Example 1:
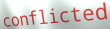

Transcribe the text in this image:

conflicted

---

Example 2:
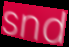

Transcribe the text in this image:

snd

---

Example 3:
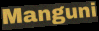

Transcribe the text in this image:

Manguni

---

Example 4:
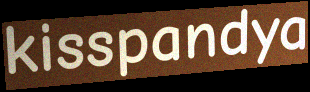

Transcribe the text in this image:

kisspandya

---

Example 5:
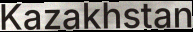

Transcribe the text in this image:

Kazakhstan